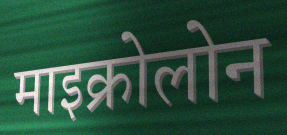
माइक्रोलोन